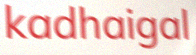
kadhaigal